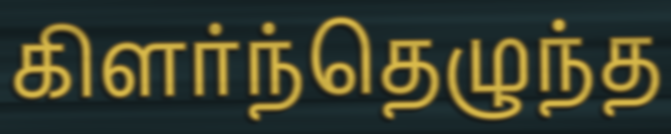
கிளர்ந்தெழுந்த